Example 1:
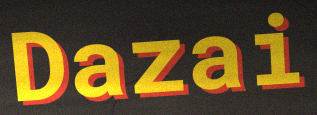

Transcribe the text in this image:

Dazai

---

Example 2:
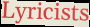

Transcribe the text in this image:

Lyricists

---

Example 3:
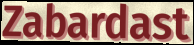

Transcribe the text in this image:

Zabardast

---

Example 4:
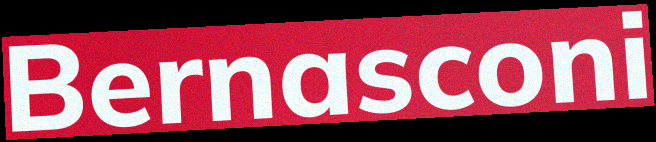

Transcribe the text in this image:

Bernasconi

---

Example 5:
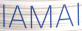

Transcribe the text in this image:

IAMAI